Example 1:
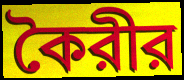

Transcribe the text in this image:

কৈরীর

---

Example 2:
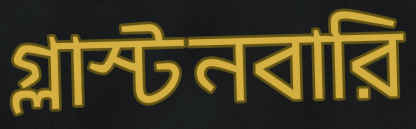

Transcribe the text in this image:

গ্লাস্টনবারি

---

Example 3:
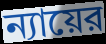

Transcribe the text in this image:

ন্যায়ের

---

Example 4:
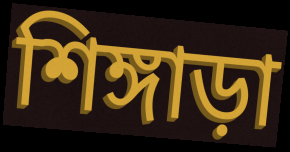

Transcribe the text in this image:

শিঙ্গাড়া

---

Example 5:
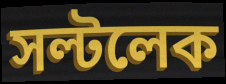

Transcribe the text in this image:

সল্টলেক